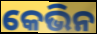
କେଭିନ